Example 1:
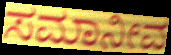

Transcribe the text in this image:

ಸಮಾನೀವ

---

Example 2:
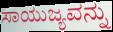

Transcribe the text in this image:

ಸಾಯುಜ್ಯವನ್ನು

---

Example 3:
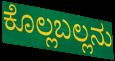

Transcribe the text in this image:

ಕೊಲ್ಲಬಲ್ಲನು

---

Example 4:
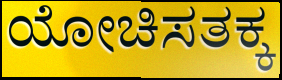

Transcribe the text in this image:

ಯೋಚಿಸತಕ್ಕ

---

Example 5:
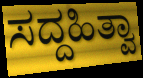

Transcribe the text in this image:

ಸದ್ದಹಿತ್ವಾ